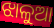
ଝାଳୁଆ